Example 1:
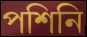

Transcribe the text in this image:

পশিনি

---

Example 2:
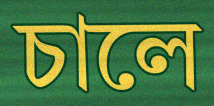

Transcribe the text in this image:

চালে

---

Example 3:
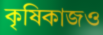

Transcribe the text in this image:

কৃষিকাজও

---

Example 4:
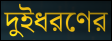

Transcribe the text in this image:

দুইধরণের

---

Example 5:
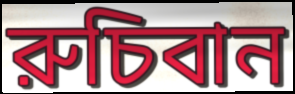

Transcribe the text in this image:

রুচিবান